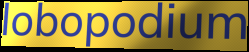
lobopodium